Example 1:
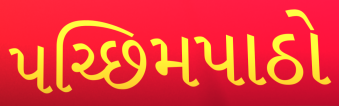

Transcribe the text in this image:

પચ્છિમપાઠો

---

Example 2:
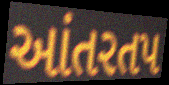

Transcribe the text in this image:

આંતરતપ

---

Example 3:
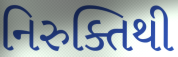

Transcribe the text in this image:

નિરુક્તિથી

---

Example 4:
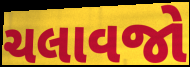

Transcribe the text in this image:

ચલાવજો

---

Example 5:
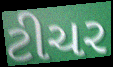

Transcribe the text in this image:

ટીચર